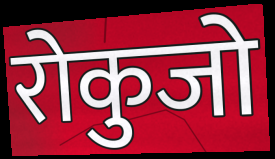
रोकुजो